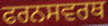
ਫਰਨਸਵਰਥ